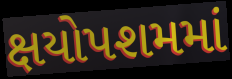
ક્ષયોપશમમાં